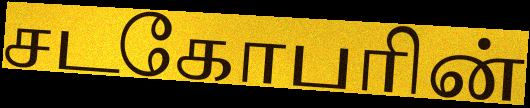
சடகோபரின்